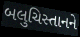
બલુચિસ્તાનને